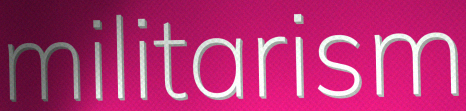
militarism